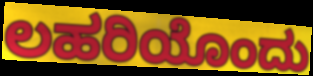
ಲಹರಿಯೊಂದು